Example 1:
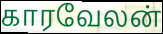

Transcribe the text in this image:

காரவேலன்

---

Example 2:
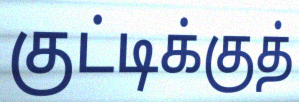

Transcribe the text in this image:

குட்டிக்குத்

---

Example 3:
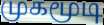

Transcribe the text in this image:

முகமூடி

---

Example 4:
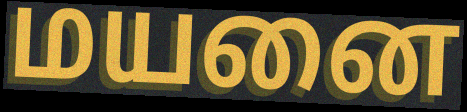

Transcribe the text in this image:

மயனை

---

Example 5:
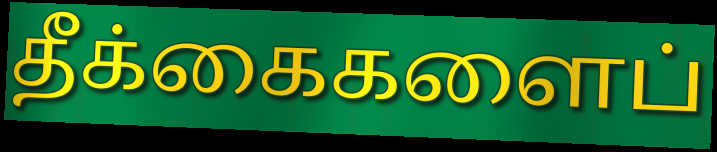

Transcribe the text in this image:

தீக்கைகளைப்